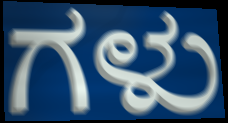
ಗಳು